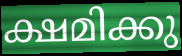
ക്ഷമിക്കു